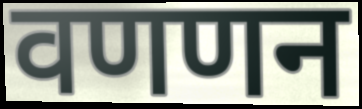
वणणन